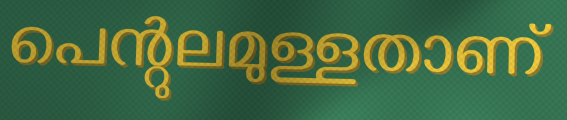
പെന്റുലമുള്ളതാണ്